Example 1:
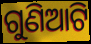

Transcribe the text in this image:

ଗୁଣିଆଟି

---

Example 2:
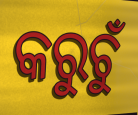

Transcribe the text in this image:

କରୁଚୁଁ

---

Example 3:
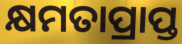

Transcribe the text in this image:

କ୍ଷମତାପ୍ରାପ୍ତ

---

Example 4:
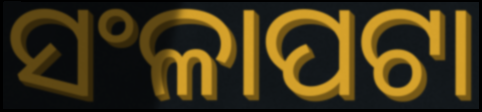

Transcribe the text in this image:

ସଂଳାପଟା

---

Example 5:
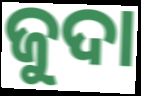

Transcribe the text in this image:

ଜୁଦା